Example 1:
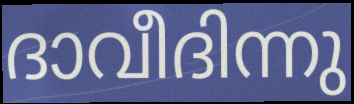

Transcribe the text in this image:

ദാവീദിന്നു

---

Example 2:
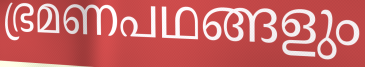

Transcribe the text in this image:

ഭ്രമണപഥങ്ങളും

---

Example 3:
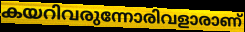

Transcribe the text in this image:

കയറിവരുന്നോരിവളാരാണ്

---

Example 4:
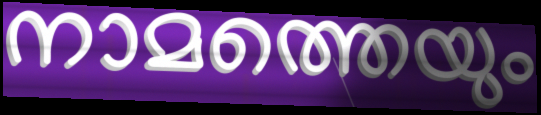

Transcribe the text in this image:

നാമത്തെയും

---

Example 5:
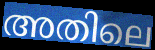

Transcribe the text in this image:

അതിലെ